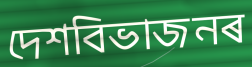
দেশবিভাজনৰ